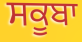
ਸਕੂਬਾ